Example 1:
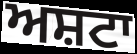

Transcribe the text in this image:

ਅਸ਼ਟਾ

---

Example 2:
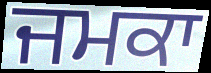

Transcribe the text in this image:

ਜਮਕਾ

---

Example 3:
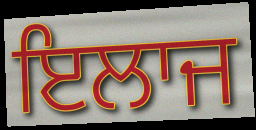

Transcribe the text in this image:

ਇਲਾਜ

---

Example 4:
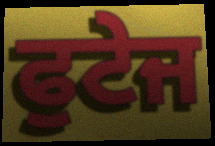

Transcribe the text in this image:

ਫੁਟੇਜ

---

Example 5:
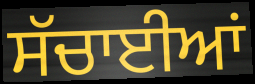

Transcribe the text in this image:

ਸੱਚਾਈਆਂ